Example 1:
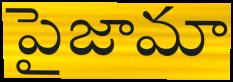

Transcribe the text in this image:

పైజామా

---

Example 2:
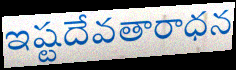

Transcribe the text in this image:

ఇష్టదేవతారాధన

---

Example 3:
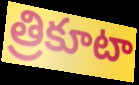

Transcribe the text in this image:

త్రికూటా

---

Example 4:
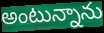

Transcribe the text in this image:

అంటున్నాను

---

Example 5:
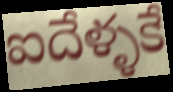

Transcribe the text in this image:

ఐదేళ్ళకే